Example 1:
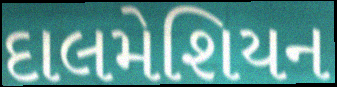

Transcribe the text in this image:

દાલમેશિયન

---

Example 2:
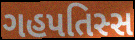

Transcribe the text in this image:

ગહપતિસ્સ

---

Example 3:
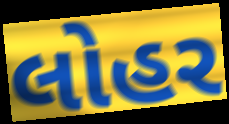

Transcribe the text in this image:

લોહર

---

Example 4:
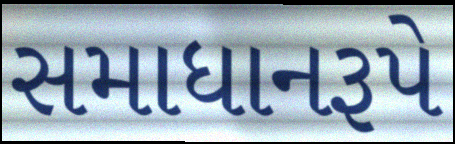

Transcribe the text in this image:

સમાધાનરૂપે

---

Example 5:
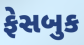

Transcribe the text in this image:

ફેસબુક